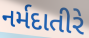
નર્મદાતીરે